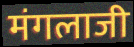
मंगलाजी